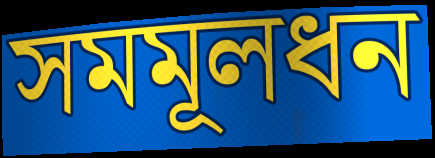
সমমূলধন